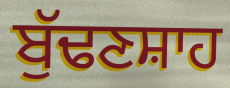
ਬੁੱਢਣਸ਼ਾਹ